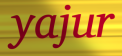
yajur